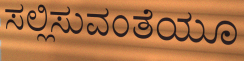
ಸಲ್ಲಿಸುವಂತೆಯೂ